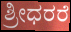
ಶ್ರೀಧರರೆ